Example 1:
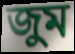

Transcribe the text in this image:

জুম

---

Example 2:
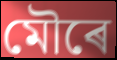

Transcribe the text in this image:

মৌৰে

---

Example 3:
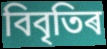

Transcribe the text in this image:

বিবৃতিৰ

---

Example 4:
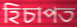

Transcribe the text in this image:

হিচাপত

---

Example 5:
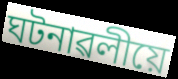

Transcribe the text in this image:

ঘটনাৱলীয়ে